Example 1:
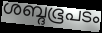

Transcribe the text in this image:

ശബ്ദഭൂപടം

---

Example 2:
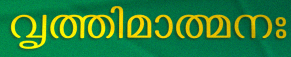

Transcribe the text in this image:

വൃത്തിമാത്മനഃ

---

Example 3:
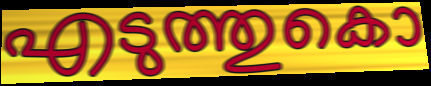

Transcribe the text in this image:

എടുത്തുകൊ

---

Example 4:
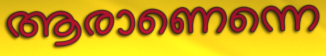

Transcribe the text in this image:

ആരാണെന്നെ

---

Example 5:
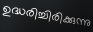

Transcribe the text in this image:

ഉദ്ധരിച്ചിരിക്കുന്നു